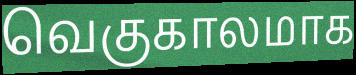
வெகுகாலமாக